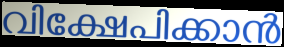
വിക്ഷേപിക്കാൻ